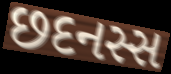
છદનસ્સ